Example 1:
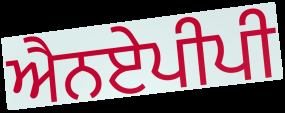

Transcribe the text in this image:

ਐਨਏਪੀਪੀ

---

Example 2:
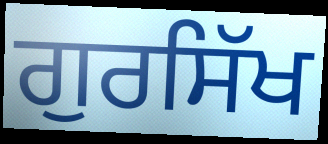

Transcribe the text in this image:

ਗੁਰਸਿੱਖ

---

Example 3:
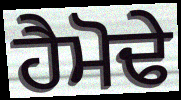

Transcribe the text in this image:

ਹੈਮੋਢੇ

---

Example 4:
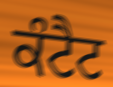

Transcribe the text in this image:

ਕੰਟੈਟ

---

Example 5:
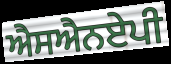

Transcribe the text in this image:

ਐਸਐਨਏਪੀ